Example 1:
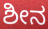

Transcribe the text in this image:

ಶೀನ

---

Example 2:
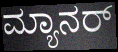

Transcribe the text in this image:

ಮ್ಯಾನರ್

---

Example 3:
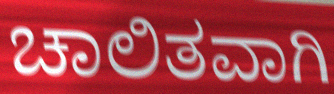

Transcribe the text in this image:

ಚಾಲಿತವಾಗಿ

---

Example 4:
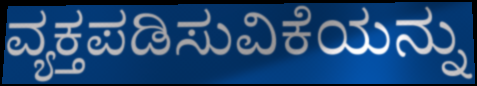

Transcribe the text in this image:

ವ್ಯಕ್ತಪಡಿಸುವಿಕೆಯನ್ನು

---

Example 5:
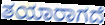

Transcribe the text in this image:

ತಯಾರಾಗದೆ